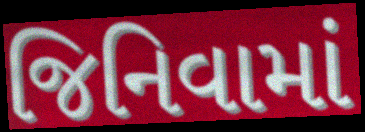
જિનિવામાં